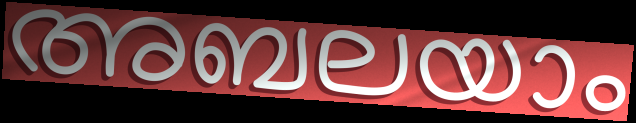
അബലയാം